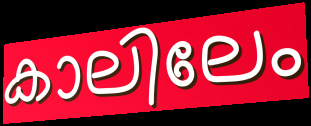
കാലിലേം